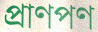
প্রাণপণ